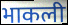
भाकली